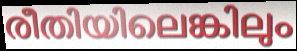
രീതിയിലെങ്കിലും